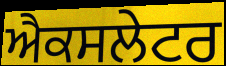
ਐਕਸਲੇਟਰ